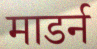
माडर्न